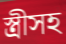
স্ত্রীসহ